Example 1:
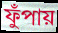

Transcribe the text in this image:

ফুঁপায়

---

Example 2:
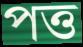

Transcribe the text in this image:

পত্ত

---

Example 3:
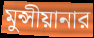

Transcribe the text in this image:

মুন্সীয়ানার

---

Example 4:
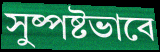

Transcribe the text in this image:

সুষ্পষ্টভাবে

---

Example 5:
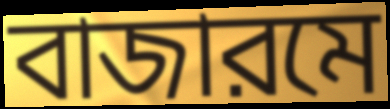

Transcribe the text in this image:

বাজারমে